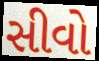
સીવો